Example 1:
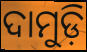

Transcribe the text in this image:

ଦାମୁଡ଼ି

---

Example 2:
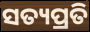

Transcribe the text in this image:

ସତ୍ୟପ୍ରତି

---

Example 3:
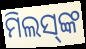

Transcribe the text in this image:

ମିଲସ୍‍ଙ୍କ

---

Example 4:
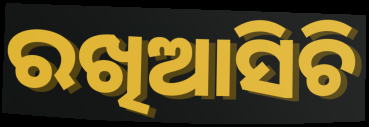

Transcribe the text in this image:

ରଖିଆସିଚି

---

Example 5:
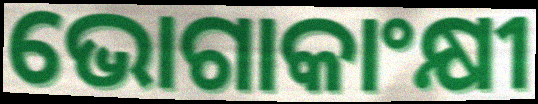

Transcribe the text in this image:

ଭୋଗାକାଂକ୍ଷୀ